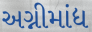
અગ્નીમાંદ્ય